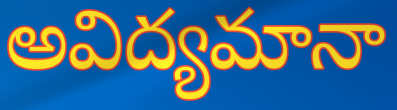
అవిద్యమానా